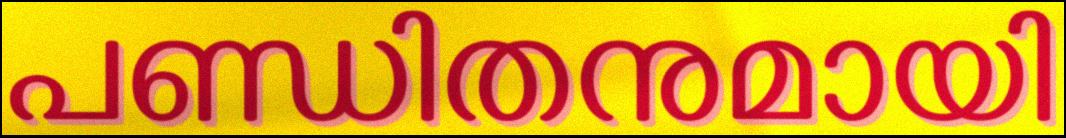
പണ്ഡിതനുമായി